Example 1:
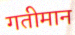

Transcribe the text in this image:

गतीमान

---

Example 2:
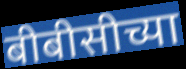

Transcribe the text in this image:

बीबीसीच्या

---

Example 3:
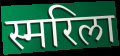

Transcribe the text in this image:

स्मरिला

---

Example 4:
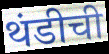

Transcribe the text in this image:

थंडीची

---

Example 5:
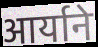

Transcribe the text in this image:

आर्याने